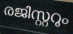
രജിസ്റ്ററും